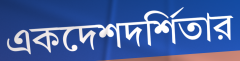
একদেশদর্শিতার